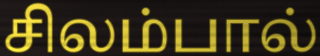
சிலம்பால்